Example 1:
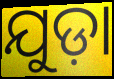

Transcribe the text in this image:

ଯୁଡ଼ା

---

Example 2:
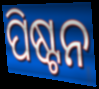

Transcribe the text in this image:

ପିଷ୍ଟନ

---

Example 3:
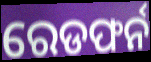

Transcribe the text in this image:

ରେଡଫର୍ନ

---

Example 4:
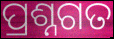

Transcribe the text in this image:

ପ୍ରଶ୍ନଗତ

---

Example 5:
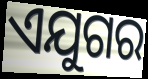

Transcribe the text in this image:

ଏଯୁଗର